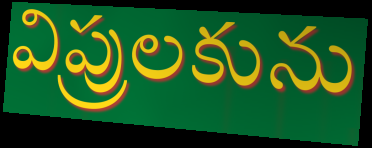
విప్రులకును